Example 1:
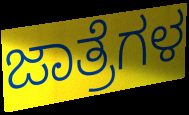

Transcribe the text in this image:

ಜಾತ್ರೆಗಳ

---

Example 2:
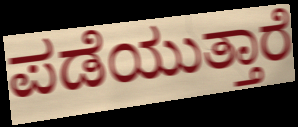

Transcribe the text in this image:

ಪಡೆಯುತ್ತಾರೆ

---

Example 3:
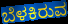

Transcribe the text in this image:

ಬೆಳಕಿರುವ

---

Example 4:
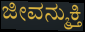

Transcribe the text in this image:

ಜೀವನ್ಮುಕ್ತಿ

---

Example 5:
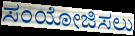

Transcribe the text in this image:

ಸಂಯೋಜಿಸಲು